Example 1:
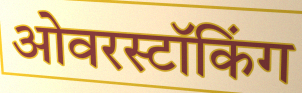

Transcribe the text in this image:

ओवरस्टॉकिंग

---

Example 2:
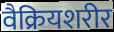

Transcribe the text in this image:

वैक्रियशरीर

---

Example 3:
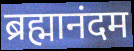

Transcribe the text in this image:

ब्रह्मानंदम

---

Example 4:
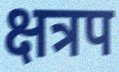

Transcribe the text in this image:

क्षत्रप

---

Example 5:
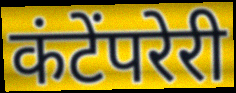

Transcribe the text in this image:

कंटेंपरेरी